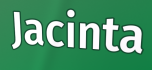
Jacinta